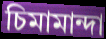
চিমামান্দা